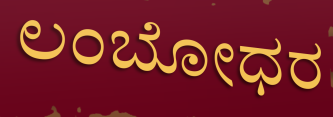
ಲಂಬೋಧರ